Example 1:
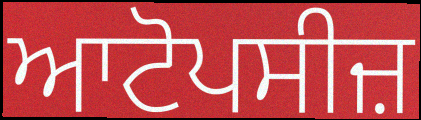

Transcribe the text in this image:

ਆਟੋਪਸੀਜ਼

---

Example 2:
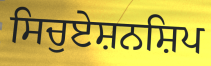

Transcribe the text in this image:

ਸਿਚੁਏਸ਼ਨਸ਼ਿਪ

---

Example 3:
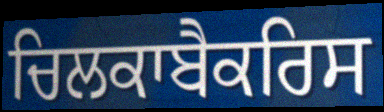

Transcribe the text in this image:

ਚਿਲਕਾਬੈਕਰਿਸ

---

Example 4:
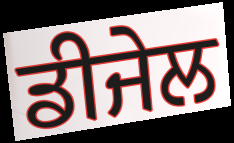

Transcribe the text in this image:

ਡੀਜੇਲ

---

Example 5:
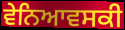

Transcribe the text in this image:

ਵੇਨਿਆਵਸਕੀ